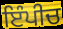
ਇੰਪੀਚ